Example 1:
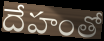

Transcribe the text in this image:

దేహంతో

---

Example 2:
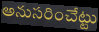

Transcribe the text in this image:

అనుసరించేట్టు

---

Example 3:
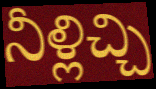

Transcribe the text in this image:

నీళ్లిచ్చి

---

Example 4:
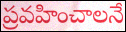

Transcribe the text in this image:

ప్రవహించాలనే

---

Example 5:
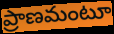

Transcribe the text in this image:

ప్రాణమంటూ